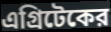
এগ্রিটেকের